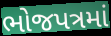
ભોજપત્રમાં